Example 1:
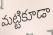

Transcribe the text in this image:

మట్టికూడా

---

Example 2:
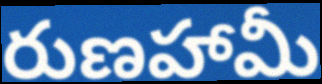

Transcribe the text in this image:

రుణహామీ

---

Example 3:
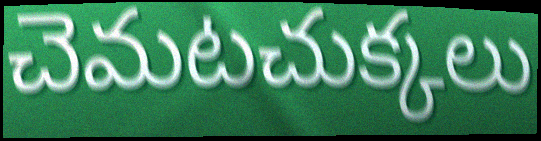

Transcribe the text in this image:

చెమటచుక్కలు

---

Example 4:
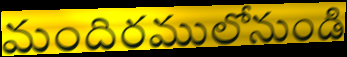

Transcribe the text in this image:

మందిరములోనుండి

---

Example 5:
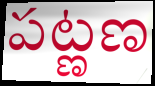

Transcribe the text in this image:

పట్ణణ